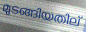
മുടങ്ങിയതില്